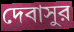
দেবাসুর